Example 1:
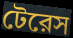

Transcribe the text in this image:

টেরেস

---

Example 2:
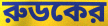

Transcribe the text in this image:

রুডকের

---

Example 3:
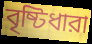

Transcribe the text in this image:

বৃষ্টিধারা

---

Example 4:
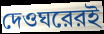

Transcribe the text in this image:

দেওঘরেরই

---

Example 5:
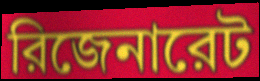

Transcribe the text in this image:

রিজেনারেট